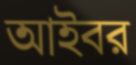
আইবর